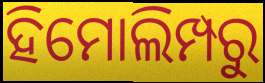
ହିମୋଲିମ୍ପରୁ